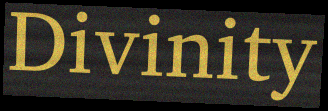
Divinity